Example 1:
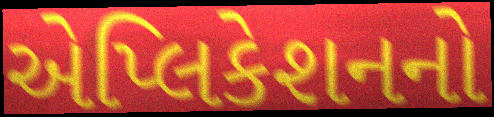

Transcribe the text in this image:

એપ્લિકેશનનો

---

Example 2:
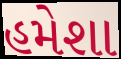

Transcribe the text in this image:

હમેશા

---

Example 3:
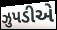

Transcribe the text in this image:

ઝુપડીએ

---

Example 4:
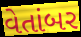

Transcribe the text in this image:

વેતાંબર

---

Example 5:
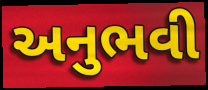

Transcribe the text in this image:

અનુભવી